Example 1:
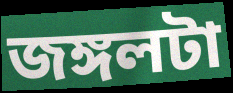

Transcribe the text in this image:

জঙ্গলটা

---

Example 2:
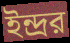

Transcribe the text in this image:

ইন্দ্রর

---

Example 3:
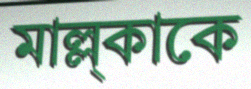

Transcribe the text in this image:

মাল্ল্কাকে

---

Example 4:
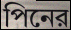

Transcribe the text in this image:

পিনের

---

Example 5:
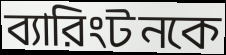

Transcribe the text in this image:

ব্যারিংটনকে